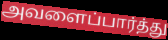
அவளைப்பார்த்து